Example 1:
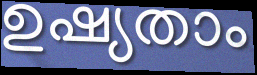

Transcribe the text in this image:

ഉഷ്യതാം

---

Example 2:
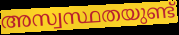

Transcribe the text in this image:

അസ്വസ്ഥതയുണ്ട്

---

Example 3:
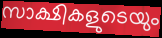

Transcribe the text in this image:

സാക്ഷികളുടെയും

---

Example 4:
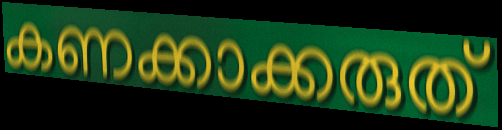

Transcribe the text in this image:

കണക്കാക്കരുത്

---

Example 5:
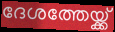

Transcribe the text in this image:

ദേശത്തേയ്ക്ക്